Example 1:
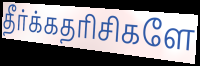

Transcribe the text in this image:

தீர்க்கதரிசிகளே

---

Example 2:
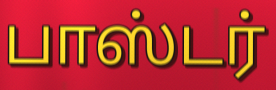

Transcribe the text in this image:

பாஸ்டர்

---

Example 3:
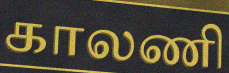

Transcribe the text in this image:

காலணி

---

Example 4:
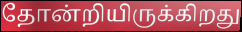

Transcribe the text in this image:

தோன்றியிருக்கிறது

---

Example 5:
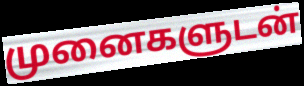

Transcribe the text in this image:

முனைகளுடன்